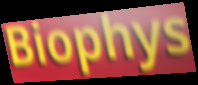
Biophys